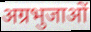
अग्रभुजाओं